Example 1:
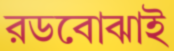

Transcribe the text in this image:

রডবোঝাই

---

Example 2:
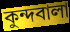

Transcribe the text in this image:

কুন্দবালা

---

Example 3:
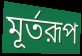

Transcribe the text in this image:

মূর্তরূপ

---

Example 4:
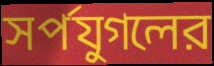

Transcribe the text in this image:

সর্পযুগলের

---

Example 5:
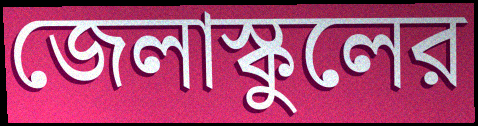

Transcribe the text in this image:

জেলাস্কুলের